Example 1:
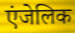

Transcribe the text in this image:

एंजेलिक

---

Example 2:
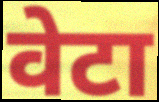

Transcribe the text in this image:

वेटा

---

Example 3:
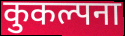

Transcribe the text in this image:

कुकल्पना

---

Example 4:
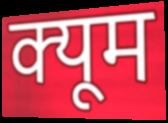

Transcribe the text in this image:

क्यूम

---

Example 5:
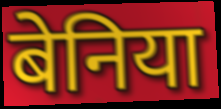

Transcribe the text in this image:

बेनिया